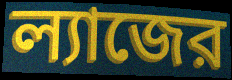
ল্যাজের